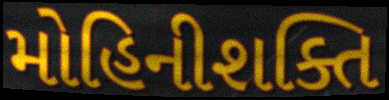
મોહિનીશક્તિ